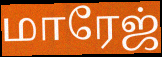
மாரேஜ்